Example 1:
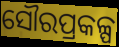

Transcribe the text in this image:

ସୌରପ୍ରକଳ୍ପ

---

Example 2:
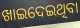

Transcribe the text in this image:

ଖାଇଦେଇଥିବା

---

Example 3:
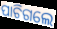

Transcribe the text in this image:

ପାଚିଗଲେ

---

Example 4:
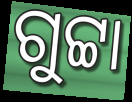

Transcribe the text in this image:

ଗୁଟ୍ଟା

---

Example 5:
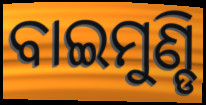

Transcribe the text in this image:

ବାଇମୁଣ୍ଡି